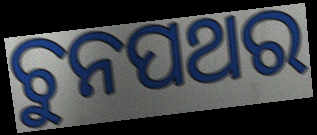
ଚୁନପଥର